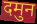
दमुन